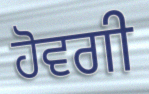
ਹੋਵਗੀ